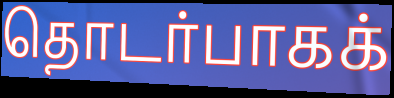
தொடர்பாகக்